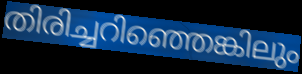
തിരിച്ചറിഞ്ഞെങ്കിലും